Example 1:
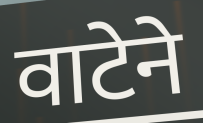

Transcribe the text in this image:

वाटेने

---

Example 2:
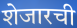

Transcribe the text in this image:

शेजारची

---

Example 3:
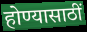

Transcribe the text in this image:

होण्यासाठीं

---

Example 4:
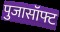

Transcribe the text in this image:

पुजासॉफ्ट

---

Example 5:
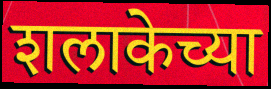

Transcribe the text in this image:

शलाकेच्या